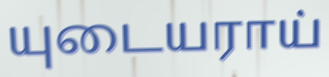
யுடையராய்